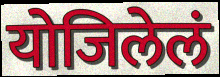
योजिलेलं